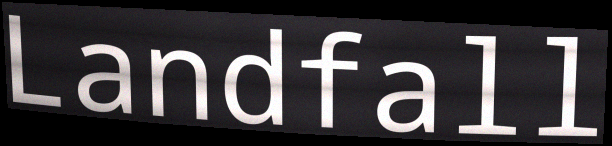
Landfall